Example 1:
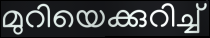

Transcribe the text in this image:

മുറിയെക്കുറിച്ച്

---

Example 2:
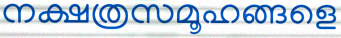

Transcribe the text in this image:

നക്ഷത്രസമൂഹങ്ങളെ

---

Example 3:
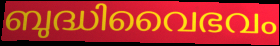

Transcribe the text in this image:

ബുദ്ധിവൈഭവം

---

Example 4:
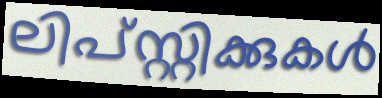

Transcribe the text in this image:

ലിപ്സ്റ്റിക്കുകൾ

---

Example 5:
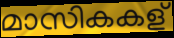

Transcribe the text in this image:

മാസികകള്